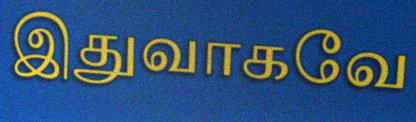
இதுவாகவே